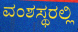
ವಂಶಸ್ಥರಲ್ಲಿ